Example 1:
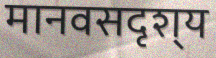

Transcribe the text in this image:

मानवसदृश्य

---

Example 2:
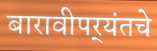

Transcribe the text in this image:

बारावीपर्यंतचे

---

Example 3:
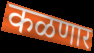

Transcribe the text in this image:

कळणार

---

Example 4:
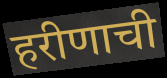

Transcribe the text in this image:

हरीणाची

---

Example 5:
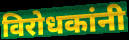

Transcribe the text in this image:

विरोधकांनी